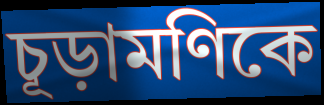
চূড়ামণিকে